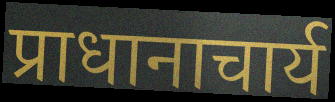
प्राधानाचार्य